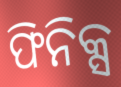
ଫିନିକ୍ସ